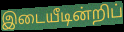
இடையீடின்றிப்